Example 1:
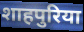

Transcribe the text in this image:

शाहपुरिया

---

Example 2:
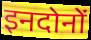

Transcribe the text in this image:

इनदोनों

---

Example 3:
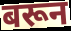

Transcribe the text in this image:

बरून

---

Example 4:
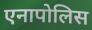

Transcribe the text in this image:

एनापोलिस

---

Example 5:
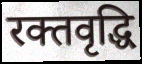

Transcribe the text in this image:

रक्तवृद्धि